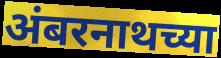
अंबरनाथच्या